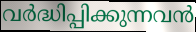
വർദ്ധിപ്പിക്കുന്നവൻ